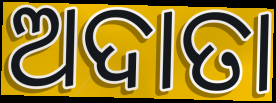
ଅଦାତା